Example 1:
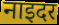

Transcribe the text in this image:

नाइदर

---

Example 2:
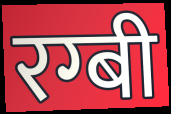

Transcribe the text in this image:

रग्‍बी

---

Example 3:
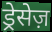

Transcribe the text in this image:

ड्रेसेज़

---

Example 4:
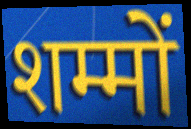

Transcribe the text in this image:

शम्मों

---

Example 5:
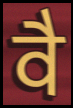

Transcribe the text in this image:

वै